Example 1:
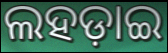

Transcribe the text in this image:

ଲହଡ଼ାଇ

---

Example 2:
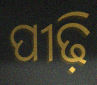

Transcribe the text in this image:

ପୀଢ଼ି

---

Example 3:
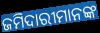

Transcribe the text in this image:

ଜମିଦାରୀମାନଙ୍କ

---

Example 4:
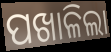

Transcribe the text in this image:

ପଖାଳିଲା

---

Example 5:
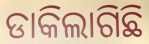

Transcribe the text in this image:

ଡାକିଲାଗିଛି